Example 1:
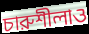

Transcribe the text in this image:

চারুশীলাও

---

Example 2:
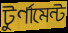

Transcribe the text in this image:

টুর্ণামেন্ট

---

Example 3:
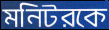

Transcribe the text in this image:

মনিটরকে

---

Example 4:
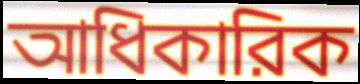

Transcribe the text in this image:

আধিকারিক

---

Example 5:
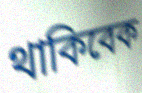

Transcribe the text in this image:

থাকিবেক